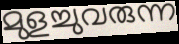
മുളച്ചുവരുന്ന